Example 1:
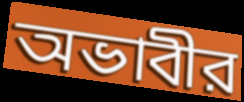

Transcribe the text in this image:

অভাবীর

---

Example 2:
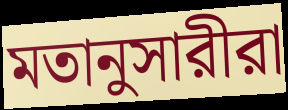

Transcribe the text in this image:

মতানুসারীরা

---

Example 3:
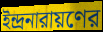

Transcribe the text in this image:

ইন্দ্রনারায়ণের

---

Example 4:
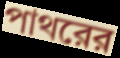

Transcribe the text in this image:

পাথরের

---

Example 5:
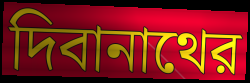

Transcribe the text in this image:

দিবানাথের